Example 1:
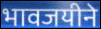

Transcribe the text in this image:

भावजयीने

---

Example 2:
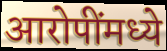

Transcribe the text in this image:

आरोपींमध्ये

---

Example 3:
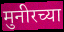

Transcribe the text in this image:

मुनीरच्या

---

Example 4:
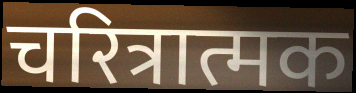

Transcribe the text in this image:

चरित्रात्मक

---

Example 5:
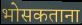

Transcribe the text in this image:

भोसकताना